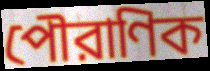
পৌরাণিক